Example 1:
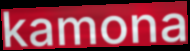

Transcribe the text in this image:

kamona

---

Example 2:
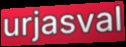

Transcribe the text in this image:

urjasval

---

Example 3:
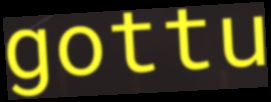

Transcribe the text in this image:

gottu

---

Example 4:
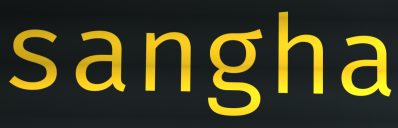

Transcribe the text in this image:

sangha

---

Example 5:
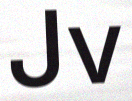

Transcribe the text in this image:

Jv